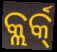
କ୍ଲର୍କ୍